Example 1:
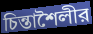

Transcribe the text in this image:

চিন্তাশৈলীর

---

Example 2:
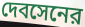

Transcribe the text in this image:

দেবসেনের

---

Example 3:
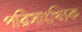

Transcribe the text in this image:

পরিসাংখ্যিক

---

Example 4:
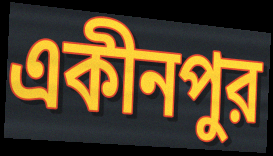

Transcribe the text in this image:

একীনপুর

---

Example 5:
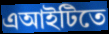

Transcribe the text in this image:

এআইটিতে